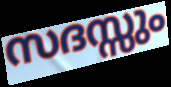
സദസ്സും